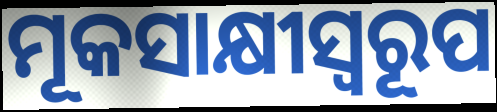
ମୂକସାକ୍ଷୀସ୍ୱରୂପ